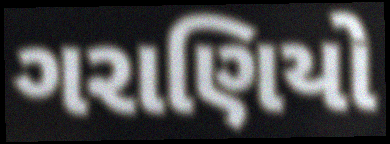
ગરાણિયો